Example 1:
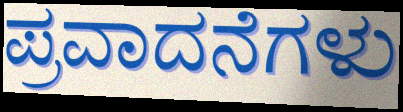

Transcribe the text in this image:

ಪ್ರವಾದನೆಗಳು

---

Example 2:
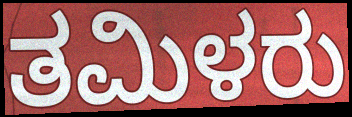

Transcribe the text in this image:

ತಮಿಳರು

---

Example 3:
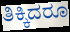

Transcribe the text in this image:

ತಿಕ್ಕಿದರೂ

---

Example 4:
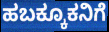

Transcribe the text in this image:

ಹಬಕ್ಕೂಕನಿಗೆ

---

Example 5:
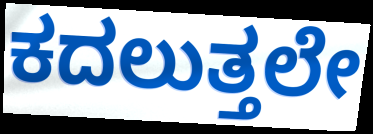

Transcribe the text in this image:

ಕದಲುತ್ತಲೇ